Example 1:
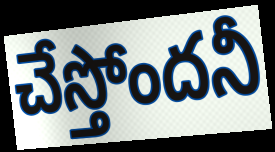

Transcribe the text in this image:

చేస్తోందనీ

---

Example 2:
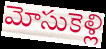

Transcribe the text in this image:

మోసుకెళ్లి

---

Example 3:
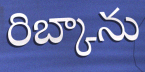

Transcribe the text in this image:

రిబ్కాను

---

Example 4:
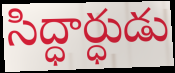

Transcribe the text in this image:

సిద్ధార్ధుడు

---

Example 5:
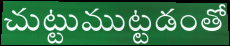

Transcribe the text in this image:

చుట్టుముట్టడంతో